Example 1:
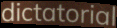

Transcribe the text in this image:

dictatorial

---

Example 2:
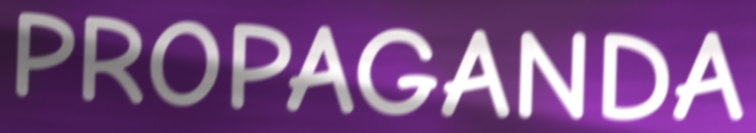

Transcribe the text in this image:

PROPAGANDA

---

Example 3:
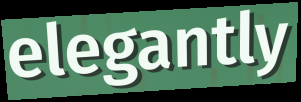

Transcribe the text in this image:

elegantly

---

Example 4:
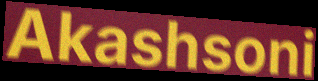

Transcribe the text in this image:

Akashsoni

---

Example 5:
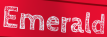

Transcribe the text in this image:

Emerald